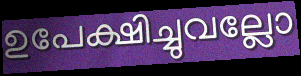
ഉപേക്ഷിച്ചുവല്ലോ